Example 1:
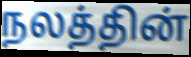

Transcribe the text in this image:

நலத்தின்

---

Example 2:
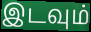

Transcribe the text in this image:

இடவும்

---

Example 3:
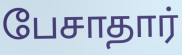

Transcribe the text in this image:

பேசாதார்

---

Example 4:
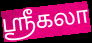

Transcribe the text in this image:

ஶ்ரீகலா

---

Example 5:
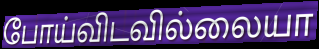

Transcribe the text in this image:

போய்விடவில்லையா